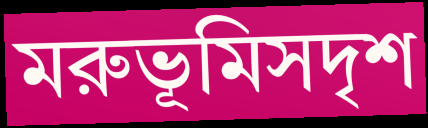
মরুভূমিসদৃশ